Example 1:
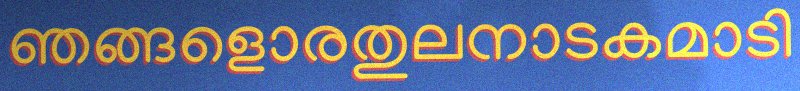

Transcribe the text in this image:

ഞങ്ങളൊരതുലനാടകമാടി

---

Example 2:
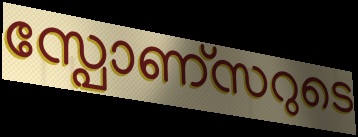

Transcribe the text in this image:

സ്പോണ്സറുടെ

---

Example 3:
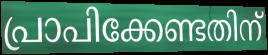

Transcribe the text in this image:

പ്രാപിക്കേണ്ടതിന്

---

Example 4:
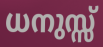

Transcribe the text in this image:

ധനുസ്സ്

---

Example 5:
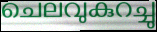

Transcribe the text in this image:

ചെലവുകുറച്ചു